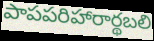
పాపపరిహారార్థబలి